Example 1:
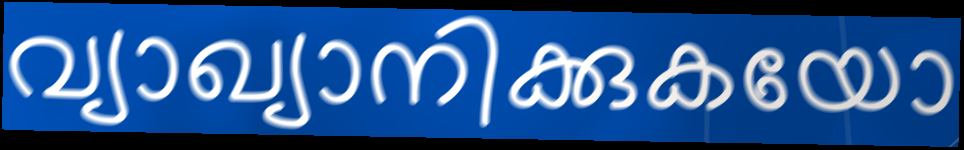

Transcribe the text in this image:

വ്യാഖ്യാനിക്കുകയോ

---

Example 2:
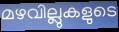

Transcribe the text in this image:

മഴവില്ലുകളുടെ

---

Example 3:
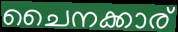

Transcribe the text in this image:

ചൈനക്കാര്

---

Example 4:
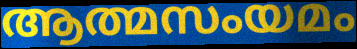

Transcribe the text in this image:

ആത്മസംയമം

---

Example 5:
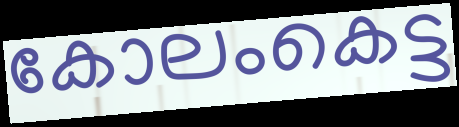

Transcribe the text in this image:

കോലംകെട്ട